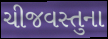
ચીજવસ્તુના